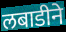
लबाडीने